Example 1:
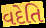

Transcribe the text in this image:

વદેતિ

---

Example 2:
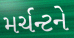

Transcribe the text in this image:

મર્ચન્ટને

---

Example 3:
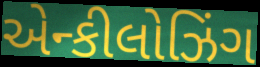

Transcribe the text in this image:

એન્કીલોઝિંગ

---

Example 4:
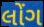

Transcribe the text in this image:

લોંગ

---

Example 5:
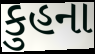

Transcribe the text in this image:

કુહના